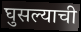
घुसल्याची